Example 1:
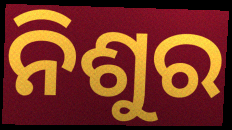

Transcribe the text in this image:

ନିଶୁର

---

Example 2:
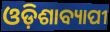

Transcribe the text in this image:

ଓଡ଼ିଶାବ୍ୟାପୀ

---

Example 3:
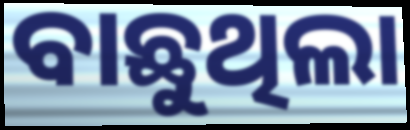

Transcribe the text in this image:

ବାଛୁଥିଲା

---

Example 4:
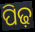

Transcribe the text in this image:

ପିଢ଼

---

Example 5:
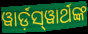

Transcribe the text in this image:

ୱାର୍ଡ଼ସ୍‌ୱାର୍ଥଙ୍କ